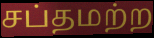
சப்தமற்ற